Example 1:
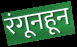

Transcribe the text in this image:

रंगूनहून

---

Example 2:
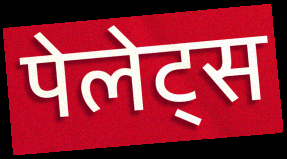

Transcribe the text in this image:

पेलेट्स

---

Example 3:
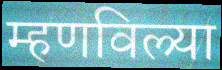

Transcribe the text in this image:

म्हणविल्या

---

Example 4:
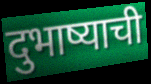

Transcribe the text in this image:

दुभाष्याची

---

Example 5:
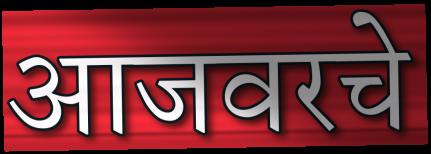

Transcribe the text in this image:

आजवरचे